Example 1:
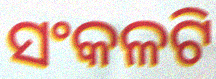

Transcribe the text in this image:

ସଂକଳଟି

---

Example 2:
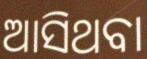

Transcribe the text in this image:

ଆସିଥବା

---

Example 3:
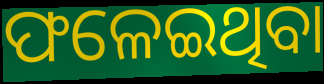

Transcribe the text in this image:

ଫଳେଇଥିବା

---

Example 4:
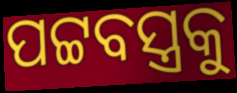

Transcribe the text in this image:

ପଟ୍ଟବସ୍ତ୍ରକୁ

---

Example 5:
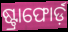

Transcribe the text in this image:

ଷ୍ଟ୍ରାଫୋର୍ଡ଼